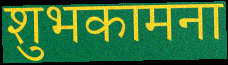
शुभकामना